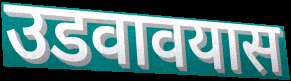
उडवावयास